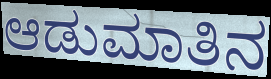
ಆಡುಮಾತಿನ